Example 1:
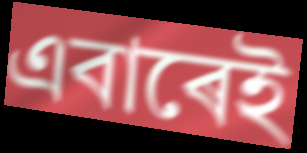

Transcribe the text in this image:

এবাৰেই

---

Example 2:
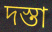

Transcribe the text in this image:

দস্তা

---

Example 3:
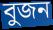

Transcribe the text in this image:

বুজন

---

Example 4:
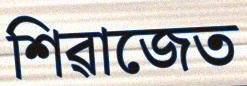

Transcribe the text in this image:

শিৱাজেত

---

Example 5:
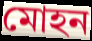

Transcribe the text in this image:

মোহন